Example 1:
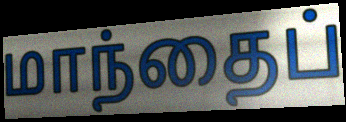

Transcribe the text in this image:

மாந்தைப்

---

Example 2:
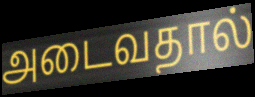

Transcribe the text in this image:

அடைவதால்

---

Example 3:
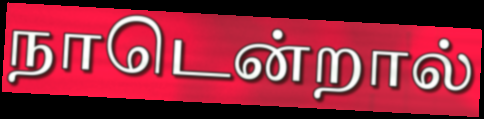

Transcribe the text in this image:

நாடென்றால்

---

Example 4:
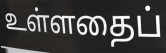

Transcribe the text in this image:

உள்ளதைப்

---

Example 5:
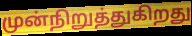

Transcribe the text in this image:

முன்நிறுத்துகிறது